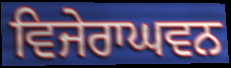
ਵਿਜੇਰਾਘਵਨ